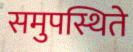
समुपस्थिते